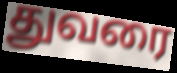
துவரை